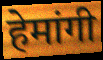
हेमांगी